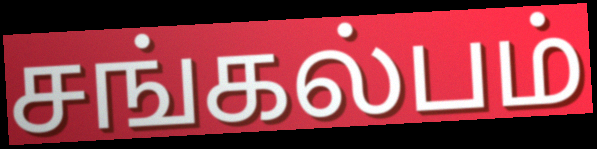
சங்கல்பம்